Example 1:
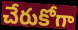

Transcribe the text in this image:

చేరుకోగా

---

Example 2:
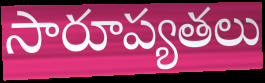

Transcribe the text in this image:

సారూప్యతలు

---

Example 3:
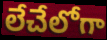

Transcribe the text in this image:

లేచేలోగా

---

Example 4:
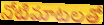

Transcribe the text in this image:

నోటిమాటలతో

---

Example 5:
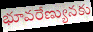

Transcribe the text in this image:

భూవరేణ్యునకు